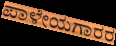
ಪಾಳೇಯಗಾರರ